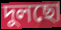
দুলছো